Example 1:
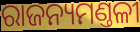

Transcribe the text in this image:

ରାଜନ୍ୟମଣ୍ତଳୀ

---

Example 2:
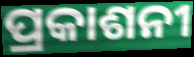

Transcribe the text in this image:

ପ୍ରକାଶନୀ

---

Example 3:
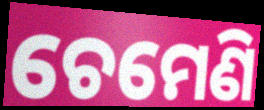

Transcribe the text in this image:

ଚେମେଣି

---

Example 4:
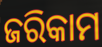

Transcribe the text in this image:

ଜରିକାମ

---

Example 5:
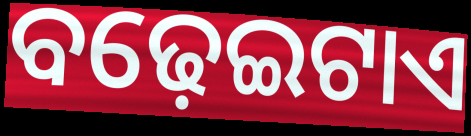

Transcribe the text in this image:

ବଢ଼େଇଟାଏ